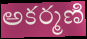
అకర్మణి